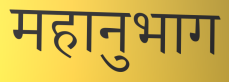
महानुभाग